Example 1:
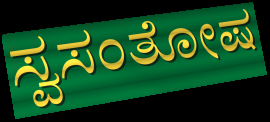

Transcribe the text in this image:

ಸ್ವಸಂತೋಷ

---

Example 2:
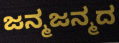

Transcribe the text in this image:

ಜನ್ಮಜನ್ಮದ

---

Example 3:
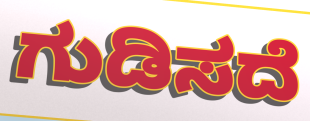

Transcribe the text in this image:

ಗುಡಿಸದೆ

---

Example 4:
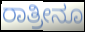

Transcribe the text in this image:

ರಾತ್ರೀನೂ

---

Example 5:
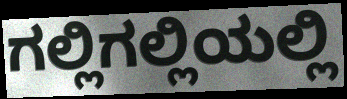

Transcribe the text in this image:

ಗಲ್ಲಿಗಲ್ಲಿಯಲ್ಲಿ